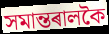
সমান্তৰালকৈ